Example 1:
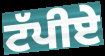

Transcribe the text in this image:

ਟੱਪੀਏ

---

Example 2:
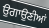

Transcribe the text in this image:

ਉਗਾਉਣੀਆਂ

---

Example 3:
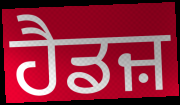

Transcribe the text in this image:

ਹੈਡਜ਼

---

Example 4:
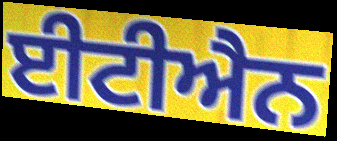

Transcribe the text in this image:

ਈਟੀਐਨ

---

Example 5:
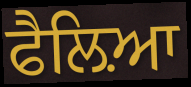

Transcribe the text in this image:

ਫੈਲ਼ਿਆ